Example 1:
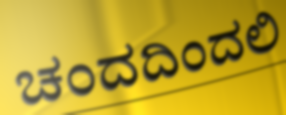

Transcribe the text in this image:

ಚಂದದಿಂದಲಿ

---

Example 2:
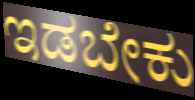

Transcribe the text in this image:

ಇಡಬೇಕು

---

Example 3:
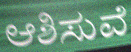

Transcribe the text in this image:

ಆಶಿಸುವೆ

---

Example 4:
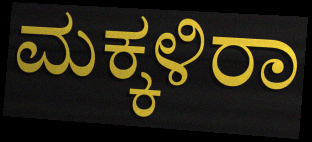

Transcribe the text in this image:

ಮಕ್ಕಳಿರಾ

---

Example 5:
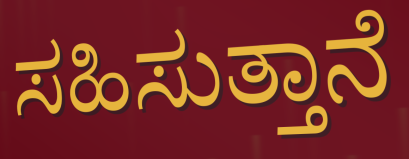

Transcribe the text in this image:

ಸಹಿಸುತ್ತಾನೆ